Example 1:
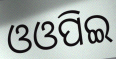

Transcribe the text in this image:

ଓଓପିଇ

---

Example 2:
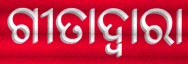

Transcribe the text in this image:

ଗୀତାଦ୍ଵାରା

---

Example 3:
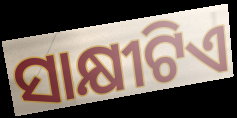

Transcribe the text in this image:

ସାକ୍ଷୀଟିଏ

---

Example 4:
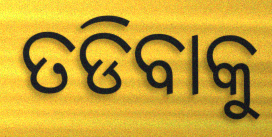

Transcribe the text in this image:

ତଡିବାକୁ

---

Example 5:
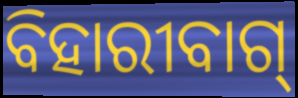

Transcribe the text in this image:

ବିହାରୀବାଗ୍